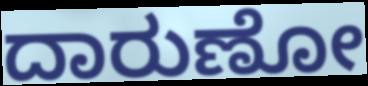
ದಾರುಣೋ